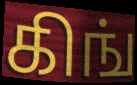
கிங்